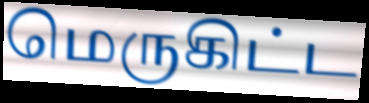
மெருகிட்ட